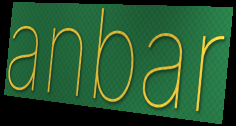
anbar